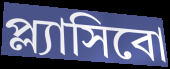
প্ল্যাসিবো